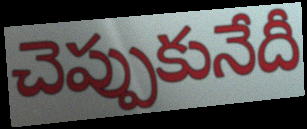
చెప్పుకునేదీ